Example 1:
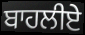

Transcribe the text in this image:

ਬਾਹਲੀਏ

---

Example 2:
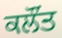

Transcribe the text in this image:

ਕਲੌਂਤ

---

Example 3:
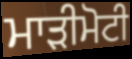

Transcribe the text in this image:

ਮਾੜੀਮੋਟੀ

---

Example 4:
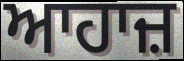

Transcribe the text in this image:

ਆਹਾਜ਼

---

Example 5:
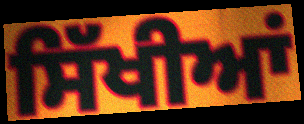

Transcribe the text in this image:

ਸਿੱਖੀਆਂ